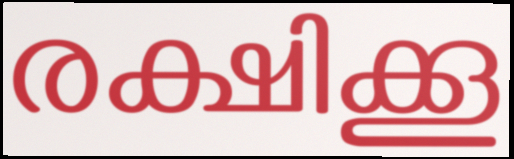
രക്ഷിക്കൂ